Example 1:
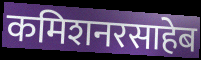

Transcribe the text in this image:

कमिशनरसाहेब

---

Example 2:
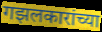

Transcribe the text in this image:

गझलकारांच्या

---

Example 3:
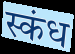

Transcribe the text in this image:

स्कंध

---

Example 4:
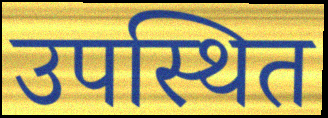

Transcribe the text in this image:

उपस्थित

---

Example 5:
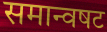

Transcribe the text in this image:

समान्वषट